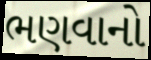
ભણવાનો